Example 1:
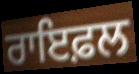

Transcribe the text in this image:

ਰਾਇਫ਼ਲ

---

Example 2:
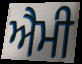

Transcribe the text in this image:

ਐਮੀ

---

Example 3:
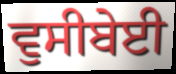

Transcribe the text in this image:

ਵੁਸੀਬੇਈ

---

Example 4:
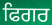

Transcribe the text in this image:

ਫਿਗਰ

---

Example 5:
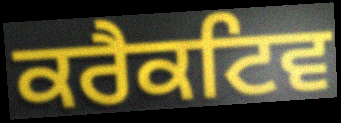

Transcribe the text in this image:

ਕਰੈਕਟਿਵ